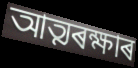
আত্মৰক্ষাৰ